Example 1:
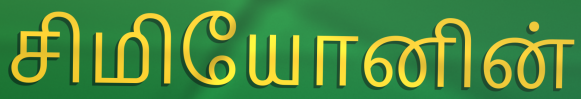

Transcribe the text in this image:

சிமியோனின்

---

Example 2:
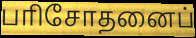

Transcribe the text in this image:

பரிசோதனைப்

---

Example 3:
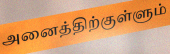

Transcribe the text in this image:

அனைத்திற்குள்ளும்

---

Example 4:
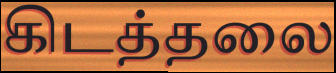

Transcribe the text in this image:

கிடத்தலை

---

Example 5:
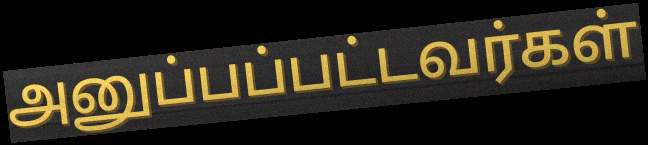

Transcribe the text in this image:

அனுப்பப்பட்டவர்கள்